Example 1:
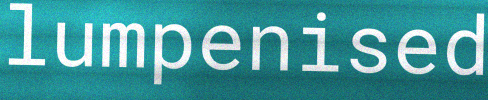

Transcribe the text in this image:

lumpenised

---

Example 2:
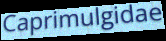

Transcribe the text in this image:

Caprimulgidae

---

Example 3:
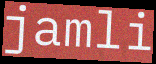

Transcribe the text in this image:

jamli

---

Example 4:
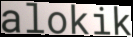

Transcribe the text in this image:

alokik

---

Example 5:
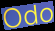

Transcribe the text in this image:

Odo